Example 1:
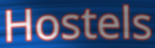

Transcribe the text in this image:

Hostels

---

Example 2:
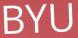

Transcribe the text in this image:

BYU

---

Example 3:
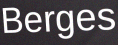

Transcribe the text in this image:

Berges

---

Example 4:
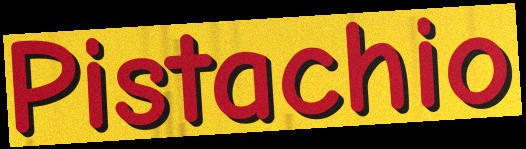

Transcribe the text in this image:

Pistachio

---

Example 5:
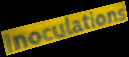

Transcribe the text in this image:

Inoculations